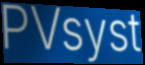
PVsyst